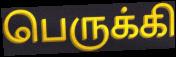
பெருக்கி